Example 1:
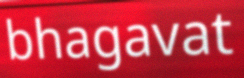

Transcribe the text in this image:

bhagavat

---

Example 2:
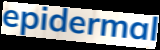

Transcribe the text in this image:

epidermal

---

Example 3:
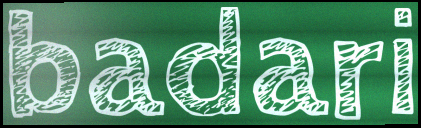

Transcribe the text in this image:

badari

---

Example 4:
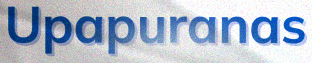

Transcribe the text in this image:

Upapuranas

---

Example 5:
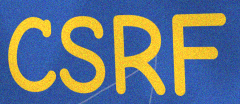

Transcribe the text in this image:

CSRF